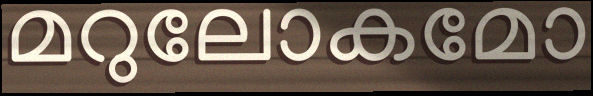
മറുലോകമോ